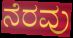
ನೆರವು